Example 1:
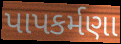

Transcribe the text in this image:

પાપકર્મણા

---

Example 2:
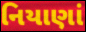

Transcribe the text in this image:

નિયાણાં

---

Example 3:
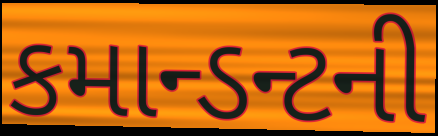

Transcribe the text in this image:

કમાન્ડન્ટની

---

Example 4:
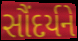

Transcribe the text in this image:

સૌંદર્યને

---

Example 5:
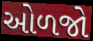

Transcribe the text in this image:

ઓળજો